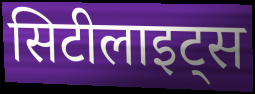
सिटीलाइट्स